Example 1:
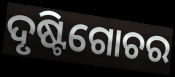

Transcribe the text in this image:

ଦୃଷ୍ଟିଗୋଚର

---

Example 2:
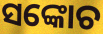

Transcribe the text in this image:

ସଙ୍କୋଚ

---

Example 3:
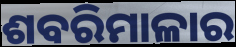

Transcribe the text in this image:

ଶବରିମାଳାର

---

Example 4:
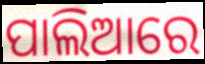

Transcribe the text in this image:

ପାଲିଆରେ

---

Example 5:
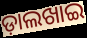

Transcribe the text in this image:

ଡ଼ାଲଖାଇ